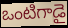
ఒంటిగాడై